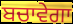
ਬਚਾਵੇਗਾ